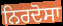
ਨਿਰਦੋਸਾ